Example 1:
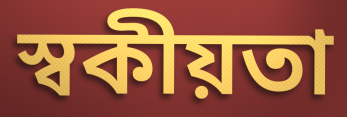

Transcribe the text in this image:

স্বকীয়তা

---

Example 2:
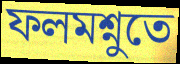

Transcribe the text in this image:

ফলমশ্নুতে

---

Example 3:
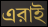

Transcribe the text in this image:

এরাই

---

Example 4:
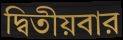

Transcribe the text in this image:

দ্বিতীয়বার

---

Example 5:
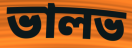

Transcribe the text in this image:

ভালভ